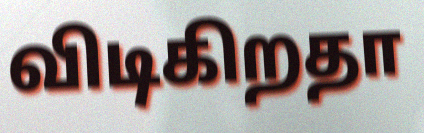
விடிகிறதா